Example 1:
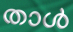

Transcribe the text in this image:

താൾ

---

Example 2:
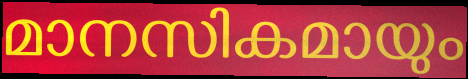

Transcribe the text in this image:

മാനസികമായും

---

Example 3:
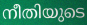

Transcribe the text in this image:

നീതിയുടെ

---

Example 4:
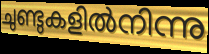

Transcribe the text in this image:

ചുണ്ടുകളിൽനിന്നു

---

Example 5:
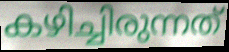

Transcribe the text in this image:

കഴിച്ചിരുന്നത്